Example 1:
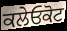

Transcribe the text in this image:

ਕਲੇਓਕੋਟ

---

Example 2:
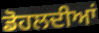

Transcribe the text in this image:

ਡੋਹਲਦੀਆਂ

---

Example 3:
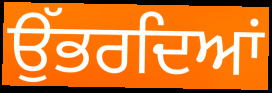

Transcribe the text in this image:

ਉੱਭਰਦਿਆਂ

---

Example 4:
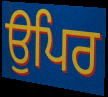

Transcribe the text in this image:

ਉਪਿਰ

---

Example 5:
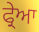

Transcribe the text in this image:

ਫ੍ਰੇਆ